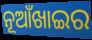
ନୂଆଁଖାଇର